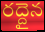
రద్దైన